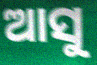
ଆସୁ